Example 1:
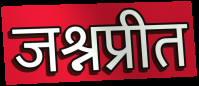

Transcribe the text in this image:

जश्नप्रीत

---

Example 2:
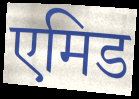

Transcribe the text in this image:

एमिड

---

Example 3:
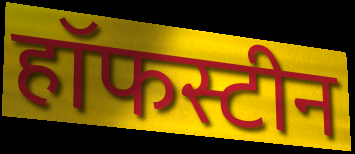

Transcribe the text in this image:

हॉफस्टीन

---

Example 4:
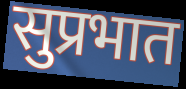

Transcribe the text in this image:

सुप्रभात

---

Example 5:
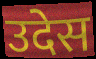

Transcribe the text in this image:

उदेस